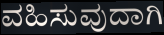
ವಹಿಸುವುದಾಗಿ